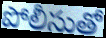
పోలీసుతో